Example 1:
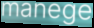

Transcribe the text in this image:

manege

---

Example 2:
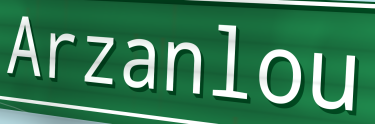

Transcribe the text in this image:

Arzanlou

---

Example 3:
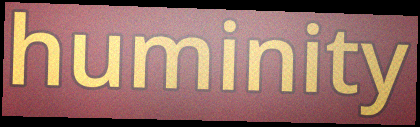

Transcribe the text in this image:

huminity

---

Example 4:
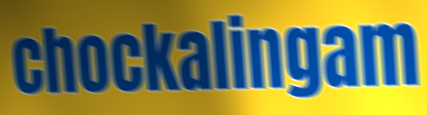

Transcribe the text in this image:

chockalingam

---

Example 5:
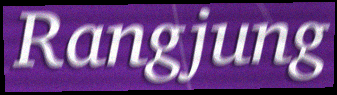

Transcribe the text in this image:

Rangjung